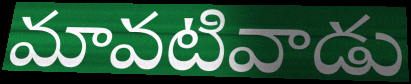
మావటివాడు